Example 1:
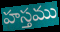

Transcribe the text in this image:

హస్తము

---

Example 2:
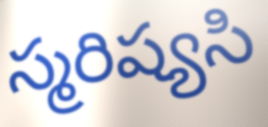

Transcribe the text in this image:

స్మరిష్యసి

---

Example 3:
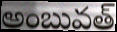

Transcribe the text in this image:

అంబువత్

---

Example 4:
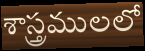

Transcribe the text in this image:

శాస్త్రములలో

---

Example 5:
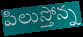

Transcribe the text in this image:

పిలుస్తోన్న